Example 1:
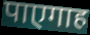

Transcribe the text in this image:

पाएगाह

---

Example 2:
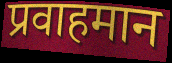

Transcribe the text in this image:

प्रवाहमान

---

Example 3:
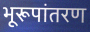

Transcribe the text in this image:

भूरूपांतरण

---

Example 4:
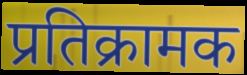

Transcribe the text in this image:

प्रतिक्रामक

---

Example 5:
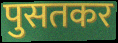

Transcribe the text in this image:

पुसतकर